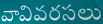
వావివరసలు